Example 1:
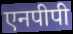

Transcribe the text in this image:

एनपीपी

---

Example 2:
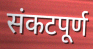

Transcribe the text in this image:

संकटपूर्ण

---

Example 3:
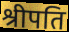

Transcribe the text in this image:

श्रीपति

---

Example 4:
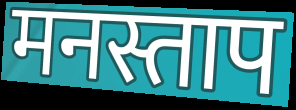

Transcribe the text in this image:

मनस्ताप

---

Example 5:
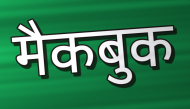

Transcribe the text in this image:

मैकबुक